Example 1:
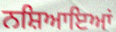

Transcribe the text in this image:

ਨਸ਼ਿਆਇਆਂ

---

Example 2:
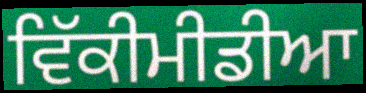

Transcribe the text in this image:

ਵਿੱਕੀਮੀਡੀਆ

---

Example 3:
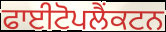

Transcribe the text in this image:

ਫਾਈਟੋਪਲੈਂਕਟਨ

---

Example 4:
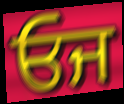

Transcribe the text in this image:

ਓਜ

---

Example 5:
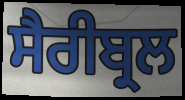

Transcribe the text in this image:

ਸੈਰੀਬ੍ਰਲ